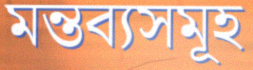
মন্তব্যসমূহ